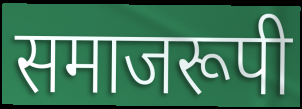
समाजरूपी